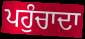
ਪਹੁੰਚਾਦਾ